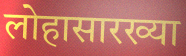
लोहासारख्या